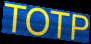
TOTP